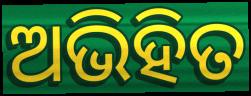
ଅଭିହିତ